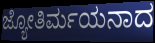
ಜ್ಯೋತಿರ್ಮಯನಾದ